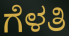
ಗೆಳತಿ